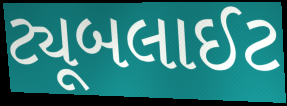
ટ્યૂબલાઈટ